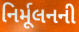
નિર્મૂલનની